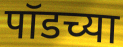
पॉडच्या